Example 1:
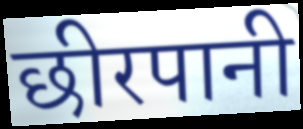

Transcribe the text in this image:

छीरपानी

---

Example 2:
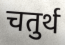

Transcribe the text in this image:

चतुर्थ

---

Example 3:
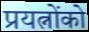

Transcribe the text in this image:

प्रयत्नोंको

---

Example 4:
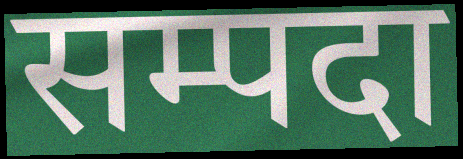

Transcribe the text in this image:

सम्पदा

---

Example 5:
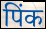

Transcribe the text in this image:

पिंक